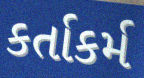
કર્તાકર્મ